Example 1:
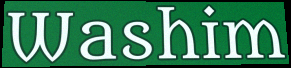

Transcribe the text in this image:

Washim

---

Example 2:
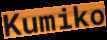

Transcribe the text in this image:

Kumiko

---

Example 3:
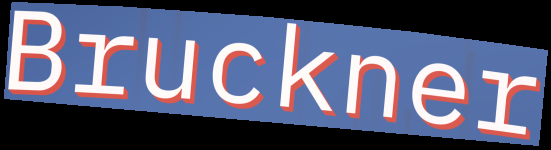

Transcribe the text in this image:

Bruckner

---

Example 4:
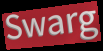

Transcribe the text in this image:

Swarg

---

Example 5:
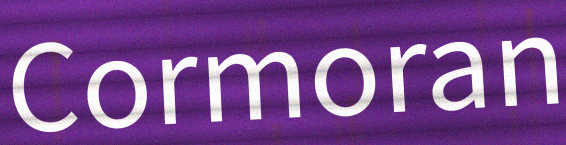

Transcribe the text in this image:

Cormoran